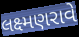
લક્ષ્મણરાવે